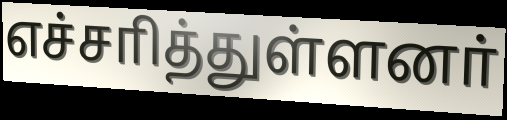
எச்சரித்துள்ளனர்